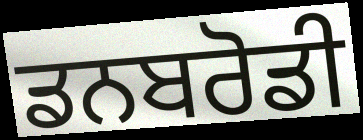
ਡਨਬਰੋਡੀ